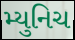
મ્યુનિચ